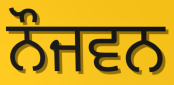
ਨੌਜਵਨ